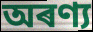
অৰণ্য